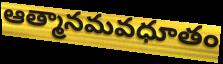
ఆత్మానమవధూతం